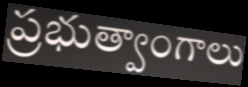
ప్రభుత్వాంగాలు